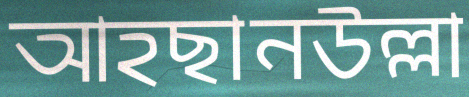
আহছানউল্লা